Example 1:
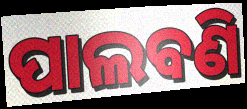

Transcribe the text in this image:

ପାଲବଣି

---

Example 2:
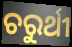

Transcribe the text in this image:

ଚରୁର୍ଥୀ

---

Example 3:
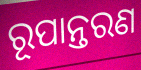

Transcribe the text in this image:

ରୂପାନ୍ତରଣ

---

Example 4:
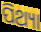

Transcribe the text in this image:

ପିଥ୍ୟା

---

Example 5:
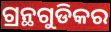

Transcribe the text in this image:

ଗ୍ରନ୍ଥଗୁଡିକର